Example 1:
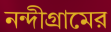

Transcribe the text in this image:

নন্দীগ্রামের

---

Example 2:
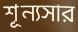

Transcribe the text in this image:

শূন্যসার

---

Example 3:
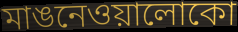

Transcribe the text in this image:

মাঙনেওয়ালোকো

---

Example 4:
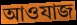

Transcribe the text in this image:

আওযাজ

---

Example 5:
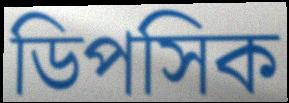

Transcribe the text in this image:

ডিপসিক